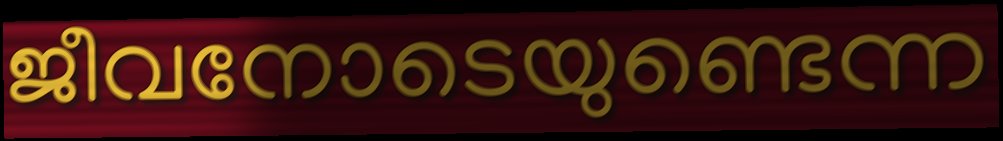
ജീവനോടെയുണ്ടെന്ന